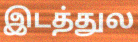
இடத்துல